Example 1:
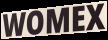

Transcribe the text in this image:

WOMEX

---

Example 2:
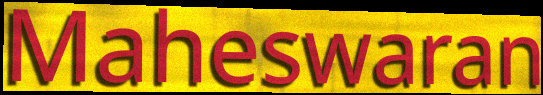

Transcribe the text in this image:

Maheswaran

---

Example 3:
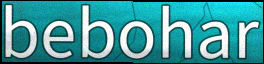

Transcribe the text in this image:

bebohar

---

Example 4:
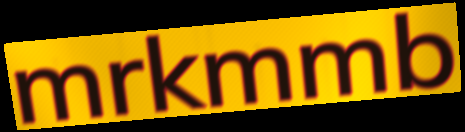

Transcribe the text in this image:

mrkmmb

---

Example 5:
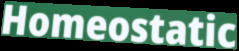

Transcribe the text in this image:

Homeostatic